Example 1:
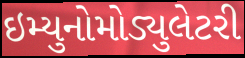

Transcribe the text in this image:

ઇમ્યુનોમોડ્યુલેટરી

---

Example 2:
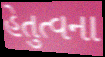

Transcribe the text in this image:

હેતુત્વના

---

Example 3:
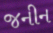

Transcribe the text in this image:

જનીન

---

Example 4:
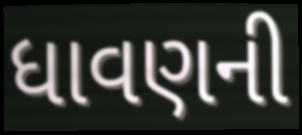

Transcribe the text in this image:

ધાવણની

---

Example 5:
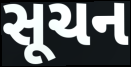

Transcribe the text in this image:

સૂચન